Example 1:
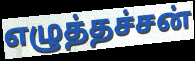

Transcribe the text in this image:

எழுத்தச்சன்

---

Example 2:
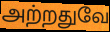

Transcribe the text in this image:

அற்றதுவே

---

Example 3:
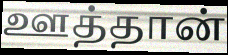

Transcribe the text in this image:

ஊத்தான்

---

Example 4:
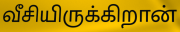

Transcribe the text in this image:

வீசியிருக்கிறான்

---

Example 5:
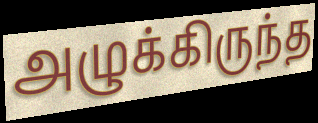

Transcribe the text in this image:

அழுக்கிருந்த